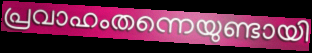
പ്രവാഹംതന്നെയുണ്ടായി